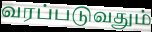
வரப்படுவதும்